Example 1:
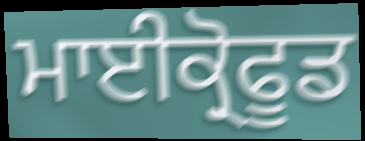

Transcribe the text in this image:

ਮਾਈਕ੍ਰੋਫੂਡ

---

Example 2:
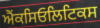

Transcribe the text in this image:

ਐਂਕਸਿਓਲਿਟਿਕਸ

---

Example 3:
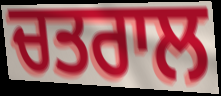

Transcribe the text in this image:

ਚਤਰਾਲ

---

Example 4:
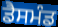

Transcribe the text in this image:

ਡੈਸਮੰਡ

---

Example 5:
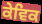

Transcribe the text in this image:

ਕੇਵਿਕ